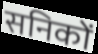
सनिकों